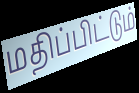
மதிப்பிட்டும்